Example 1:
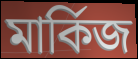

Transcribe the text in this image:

মার্কিজ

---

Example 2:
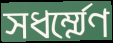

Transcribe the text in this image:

সধর্ম্মেণ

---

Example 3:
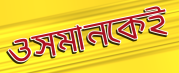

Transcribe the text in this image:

ওসমানকেই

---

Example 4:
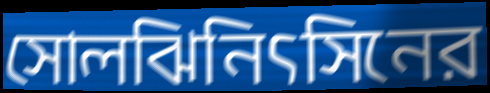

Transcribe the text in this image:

সোলঝিনিৎসিনের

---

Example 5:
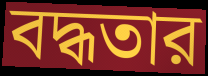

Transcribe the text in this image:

বদ্ধতার